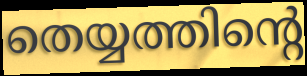
തെയ്യത്തിന്റെ